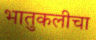
भातुकलीचा